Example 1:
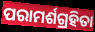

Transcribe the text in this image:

ପରାମର୍ଶଗ୍ରହିତା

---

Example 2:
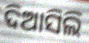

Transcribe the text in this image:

ଦିଆସିଲି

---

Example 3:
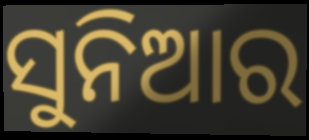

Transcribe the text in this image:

ସୁନିଆର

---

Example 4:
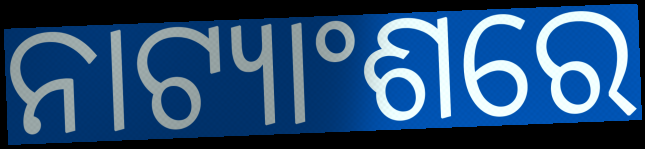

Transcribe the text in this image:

ନାଟ୍ୟାଂଶରେ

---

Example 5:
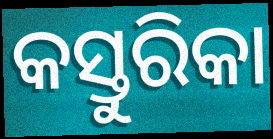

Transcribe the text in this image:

କସ୍ତୁରିକା